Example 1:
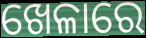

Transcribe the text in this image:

ଖେଳାରେ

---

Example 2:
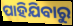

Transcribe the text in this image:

ପାହିଯିବାରୁ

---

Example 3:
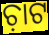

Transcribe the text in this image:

ଚ଼ାଟ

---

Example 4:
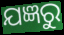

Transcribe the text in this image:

ଯଜ୍ଞରୁ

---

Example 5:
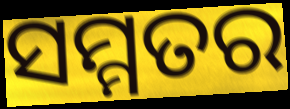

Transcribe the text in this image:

ସମ୍ମତର